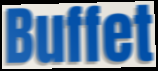
Buffet